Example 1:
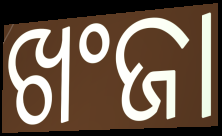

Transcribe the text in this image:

ଖଂଜା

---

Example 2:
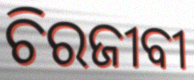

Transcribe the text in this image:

ଚିରଜୀବୀ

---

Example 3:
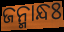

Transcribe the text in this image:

ଜନ୍ମାନ୍ଧଃ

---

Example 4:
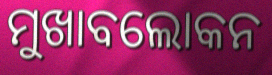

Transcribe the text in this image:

ମୁଖାବଲୋକନ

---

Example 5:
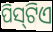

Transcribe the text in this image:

ପିସ୍‌ଟିଏ